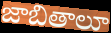
జాబితాలూ